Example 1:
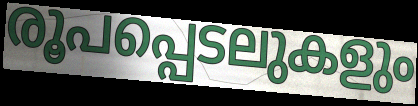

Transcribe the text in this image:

രൂപപ്പെടലുകളും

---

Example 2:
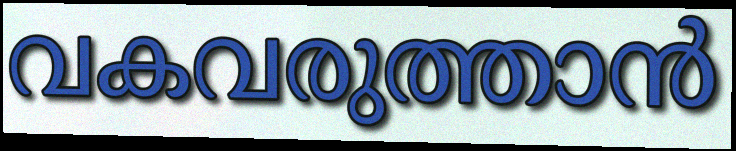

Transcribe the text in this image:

വകവരുത്താൻ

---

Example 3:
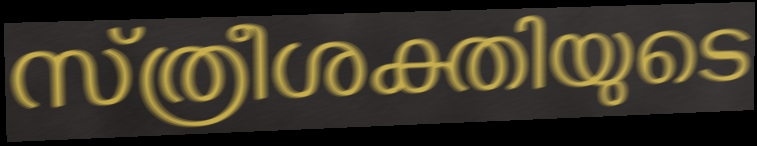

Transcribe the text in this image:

സ്‌ത്രീശക്തിയുടെ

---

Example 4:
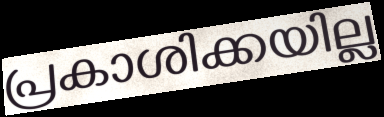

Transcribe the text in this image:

പ്രകാശിക്കയില്ല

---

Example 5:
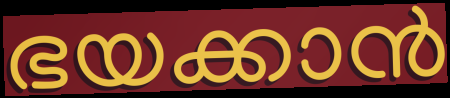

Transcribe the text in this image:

ഭയക്കാൻ